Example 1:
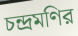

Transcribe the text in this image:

চন্দ্রমণির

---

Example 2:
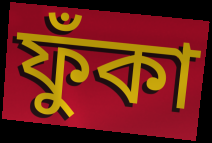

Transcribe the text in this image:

ফুঁকা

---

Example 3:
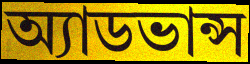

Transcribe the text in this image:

অ্যাডভান্স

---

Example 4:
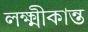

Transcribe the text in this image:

লক্ষ্মীকান্ত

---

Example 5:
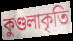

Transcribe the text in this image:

কুণ্ডলাকৃতি